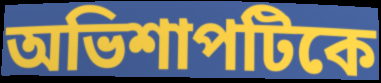
অভিশাপটিকে